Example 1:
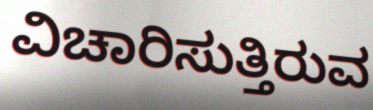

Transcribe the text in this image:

ವಿಚಾರಿಸುತ್ತಿರುವ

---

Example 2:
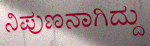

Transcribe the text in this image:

ನಿಪುಣನಾಗಿದ್ದು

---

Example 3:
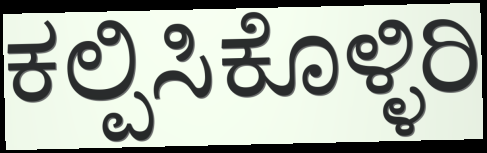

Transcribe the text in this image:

ಕಲ್ಪಿಸಿಕೊಳ್ಳಿರಿ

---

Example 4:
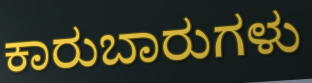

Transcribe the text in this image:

ಕಾರುಬಾರುಗಳು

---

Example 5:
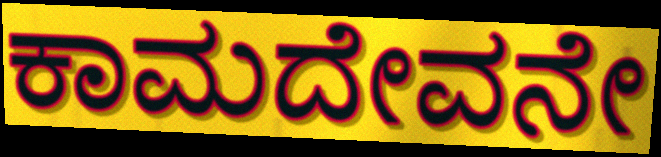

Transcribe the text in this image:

ಕಾಮದೇವನೇ